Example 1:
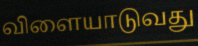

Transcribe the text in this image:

விளையாடுவது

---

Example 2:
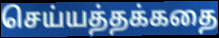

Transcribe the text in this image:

செய்யத்தக்கதை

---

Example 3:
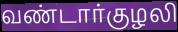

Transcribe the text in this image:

வண்டார்குழலி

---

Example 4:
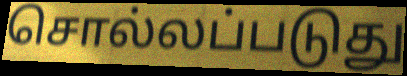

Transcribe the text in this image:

சொல்லப்படுது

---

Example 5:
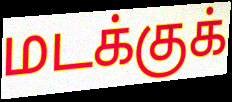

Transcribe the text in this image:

மடக்குக்